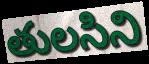
తులసిని